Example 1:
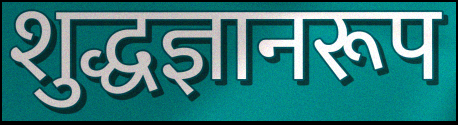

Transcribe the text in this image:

शुद्धज्ञानरूप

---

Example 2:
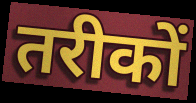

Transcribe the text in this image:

तरीकों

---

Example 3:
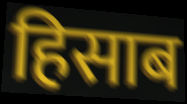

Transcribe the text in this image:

हिसाब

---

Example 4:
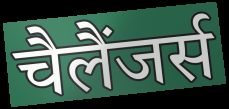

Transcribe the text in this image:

चैलैंजर्स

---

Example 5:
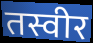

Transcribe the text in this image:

तस्वीर